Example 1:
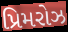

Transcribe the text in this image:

પ્રિમરોઝ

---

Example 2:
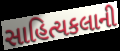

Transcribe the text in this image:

સાહિત્યકલાની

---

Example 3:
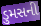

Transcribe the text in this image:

ડુમસની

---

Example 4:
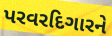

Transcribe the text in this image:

પરવરદિગારને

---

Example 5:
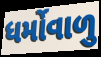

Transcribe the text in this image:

ધર્મોવાળુ